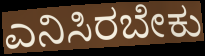
ಎನಿಸಿರಬೇಕು